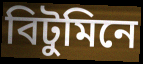
বিটুমিনে